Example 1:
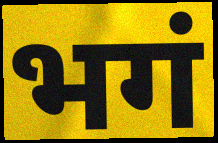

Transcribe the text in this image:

भगं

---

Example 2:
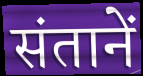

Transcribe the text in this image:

संतानें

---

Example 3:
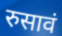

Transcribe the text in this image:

रुसावं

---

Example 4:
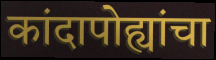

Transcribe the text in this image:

कांदापोह्यांचा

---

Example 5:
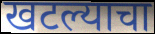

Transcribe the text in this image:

खटल्याचा